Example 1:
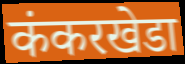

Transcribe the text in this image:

कंकरखेडा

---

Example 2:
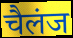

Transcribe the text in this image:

चैलंज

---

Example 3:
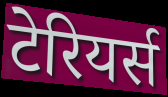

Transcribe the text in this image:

टेरियर्स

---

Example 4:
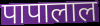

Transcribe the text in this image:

पापालाल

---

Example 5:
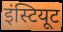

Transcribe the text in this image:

इंस्टियूट